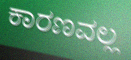
ಕಾರಣವಲ್ಲ